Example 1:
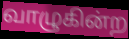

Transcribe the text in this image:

வாழுகின்ற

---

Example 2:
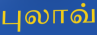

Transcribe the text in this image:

புலாவ்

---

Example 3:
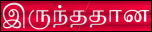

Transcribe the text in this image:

இருந்ததான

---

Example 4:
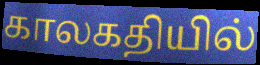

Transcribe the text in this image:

காலகதியில்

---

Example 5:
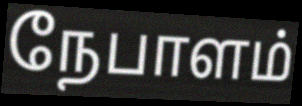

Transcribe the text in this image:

நேபாளம்